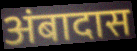
अंबादास